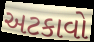
અટકાવો